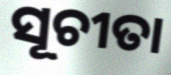
ସୂଚୀତା